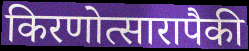
किरणोत्सारापैकी